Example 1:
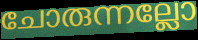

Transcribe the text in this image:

ചോരുന്നല്ലോ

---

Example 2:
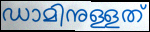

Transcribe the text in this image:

ഡാമിനുള്ളത്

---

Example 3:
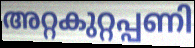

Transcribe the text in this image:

അറ്റകുറ്റപ്പണി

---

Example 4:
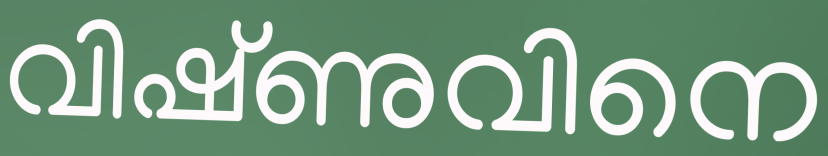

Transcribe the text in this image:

വിഷ്‌ണുവിനെ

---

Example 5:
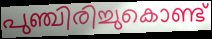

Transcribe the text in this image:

പുഞ്ചിരിച്ചുകൊണ്ട്